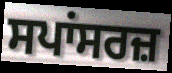
ਸਪਾਂਸਰਜ਼